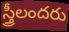
స్త్రీలందరు